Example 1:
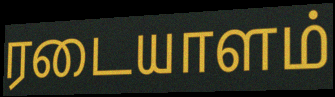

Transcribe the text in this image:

ரடையாளம்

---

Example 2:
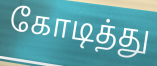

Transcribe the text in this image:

கோடித்து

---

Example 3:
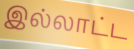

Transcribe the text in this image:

இல்லாட்ட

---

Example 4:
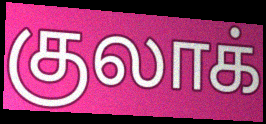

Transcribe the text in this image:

குலாக்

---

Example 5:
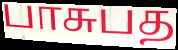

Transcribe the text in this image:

பாசுபத